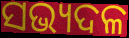
ସଭ୍ୟଦଳ